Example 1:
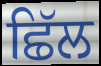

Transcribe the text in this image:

ਛਿੱਲ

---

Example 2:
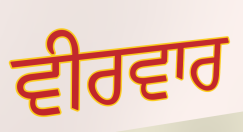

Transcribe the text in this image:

ਵੀਰਵਾਰ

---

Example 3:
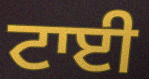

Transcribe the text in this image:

ਟਾਈ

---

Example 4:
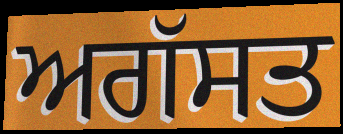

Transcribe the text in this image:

ਅਗੱਸਤ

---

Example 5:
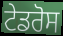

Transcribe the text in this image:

ਟੇਡਰੋਸ